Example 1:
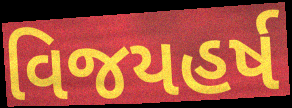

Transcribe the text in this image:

વિજયહર્ષ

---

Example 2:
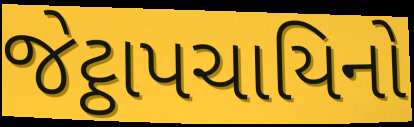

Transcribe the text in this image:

જેટ્ઠાપચાયિનો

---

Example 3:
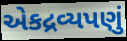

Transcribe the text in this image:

એકદ્રવ્યપણું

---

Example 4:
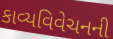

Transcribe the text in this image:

કાવ્યવિવેચનની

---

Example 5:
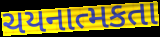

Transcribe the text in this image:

ચયનાત્મકતા